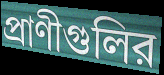
প্রাণীগুলির